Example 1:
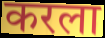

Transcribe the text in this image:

करला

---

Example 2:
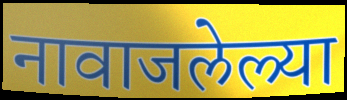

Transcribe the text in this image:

नावाजलेल्या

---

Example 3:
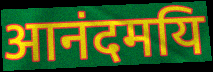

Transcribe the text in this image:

आनंदमयि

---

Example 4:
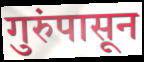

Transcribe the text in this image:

गुरुंपासून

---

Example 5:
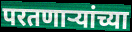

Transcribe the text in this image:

परतणाऱ्यांच्या